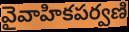
వైవాహికపర్వణి